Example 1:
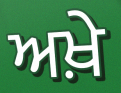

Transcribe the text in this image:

ਅਖ਼ੇ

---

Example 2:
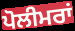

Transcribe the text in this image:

ਪੋਲੀਮਰਾਂ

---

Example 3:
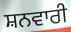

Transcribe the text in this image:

ਸ਼ਨਵਾਰੀ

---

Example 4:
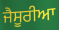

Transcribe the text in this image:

ਜੈਸੂਰੀਆ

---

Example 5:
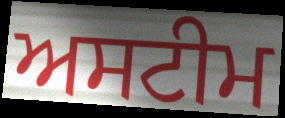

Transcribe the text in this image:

ਅਸਟੀਮ